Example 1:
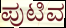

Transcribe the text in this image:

ಪುಟಿವ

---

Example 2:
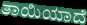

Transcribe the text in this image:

ತಾಯಿಯಾದೆ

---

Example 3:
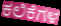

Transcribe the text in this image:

ಕಲಿಕೆಗಳ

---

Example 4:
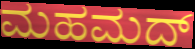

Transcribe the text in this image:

ಮಹಮದ್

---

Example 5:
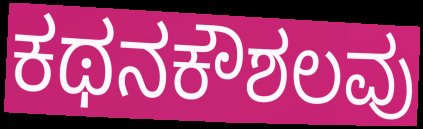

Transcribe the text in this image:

ಕಥನಕೌಶಲವು